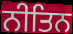
ਨੀਤਿਨ